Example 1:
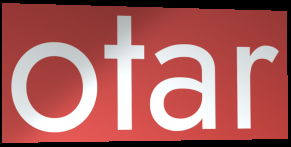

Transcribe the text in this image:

otar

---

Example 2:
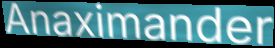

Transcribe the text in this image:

Anaximander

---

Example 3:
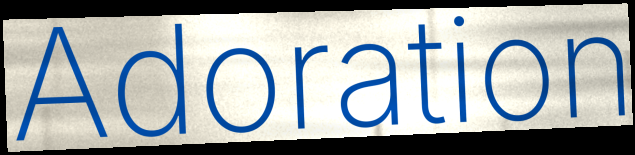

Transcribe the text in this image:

Adoration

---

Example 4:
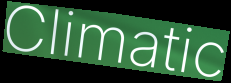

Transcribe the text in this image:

Climatic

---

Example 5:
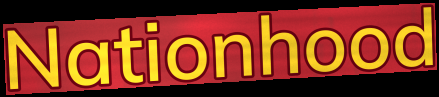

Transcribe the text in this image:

Nationhood